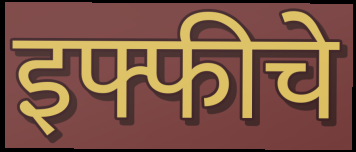
इफ्फीचे